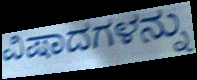
ವಿಷಾದಗಳನ್ನು